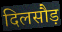
दिलसौड़